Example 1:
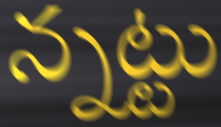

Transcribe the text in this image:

న్నట్టు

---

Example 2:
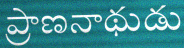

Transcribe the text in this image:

ప్రాణనాథుడు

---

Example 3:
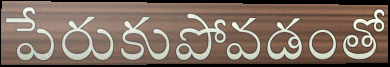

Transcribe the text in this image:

పేరుకుపోవడంతో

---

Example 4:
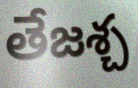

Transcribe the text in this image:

తేజశ్చ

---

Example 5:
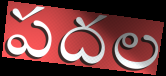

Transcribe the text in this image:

పదల